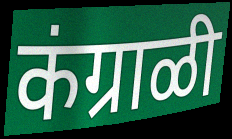
कंग्राळी